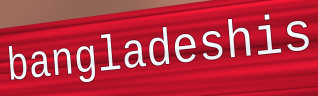
bangladeshis